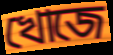
খোজে